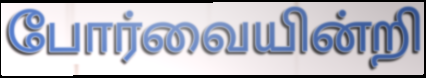
போர்வையின்றி